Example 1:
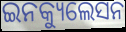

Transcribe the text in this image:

ଇନକ୍ୟୁଲେସନ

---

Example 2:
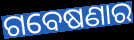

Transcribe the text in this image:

ଗବେଷଣାର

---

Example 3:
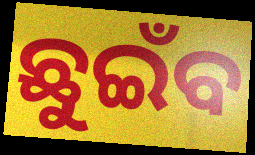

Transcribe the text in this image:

ଛୁଇଁବ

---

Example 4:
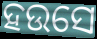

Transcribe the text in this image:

ହଉସେ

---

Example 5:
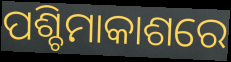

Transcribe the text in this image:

ପଶ୍ଚିମାକାଶରେ